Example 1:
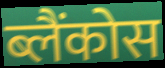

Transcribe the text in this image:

ब्लैंकोस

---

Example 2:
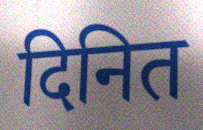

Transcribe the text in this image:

दिनित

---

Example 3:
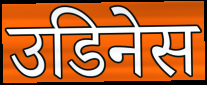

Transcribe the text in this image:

उडिनेस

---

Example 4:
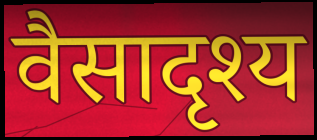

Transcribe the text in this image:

वैसादृश्य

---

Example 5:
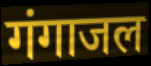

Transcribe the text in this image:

गंगाजल